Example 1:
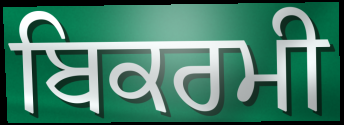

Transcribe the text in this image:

ਬਿਕਰਮੀ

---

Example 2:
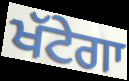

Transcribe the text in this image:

ਖੱਟੇਗਾ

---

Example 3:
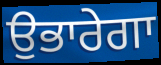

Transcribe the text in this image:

ਉਭਾਰੇਗਾ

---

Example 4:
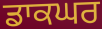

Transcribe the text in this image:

ਡਾਕਘਰ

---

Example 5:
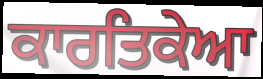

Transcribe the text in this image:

ਕਾਰਤਿਕੇਆ